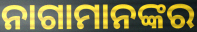
ନାଗାମାନଙ୍କର